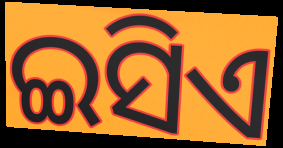
ଇସିଏ